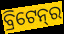
ବ୍ରିଟେନ୍‌ର